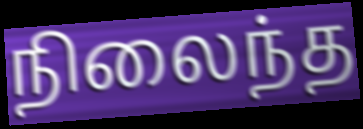
நிலைந்த